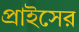
প্রাইসের